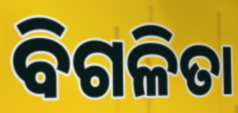
ବିଗଳିତା